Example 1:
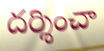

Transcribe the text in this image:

దర్శించా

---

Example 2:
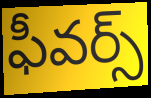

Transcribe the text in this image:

ఫీవర్స్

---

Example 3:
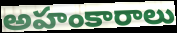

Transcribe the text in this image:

అహంకారాలు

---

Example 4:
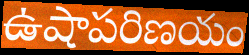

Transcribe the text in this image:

ఉషాపరిణయం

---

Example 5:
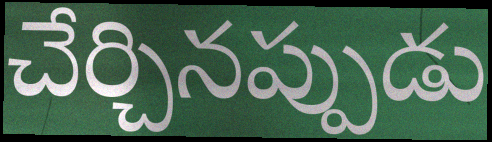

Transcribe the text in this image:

చేర్చినప్పుడు